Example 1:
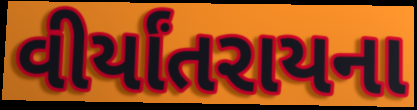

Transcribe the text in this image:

વીર્યાંતરાયના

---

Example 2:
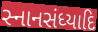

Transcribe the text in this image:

સ્નાનસંધ્યાદિ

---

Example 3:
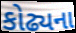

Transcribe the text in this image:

કોઢ્યના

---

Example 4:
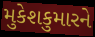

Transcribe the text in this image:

મુકેશકુમારને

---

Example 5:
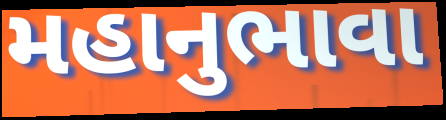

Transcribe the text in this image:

મહાનુભાવા